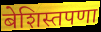
बेशिस्तपणा